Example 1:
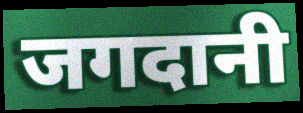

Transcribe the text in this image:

जगदानी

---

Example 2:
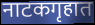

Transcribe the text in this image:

नाटकगृहात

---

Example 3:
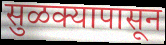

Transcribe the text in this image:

सुळक्यापासून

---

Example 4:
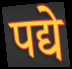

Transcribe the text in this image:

पद्ये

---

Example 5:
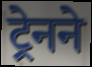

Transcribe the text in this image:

ट्रेनने